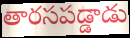
తారసపడ్డాడు